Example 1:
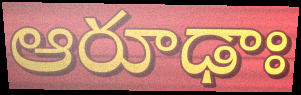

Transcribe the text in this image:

ఆరూఢాః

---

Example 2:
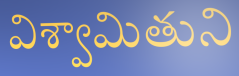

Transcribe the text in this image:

విశ్వామితుని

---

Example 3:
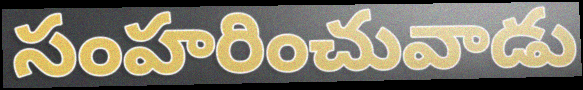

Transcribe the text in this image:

సంహరించువాడు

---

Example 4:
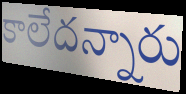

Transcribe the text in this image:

కాలేదన్నారు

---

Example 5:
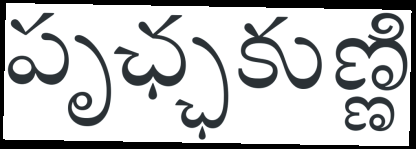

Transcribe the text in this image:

పృఛ్ఛకుణ్ణి